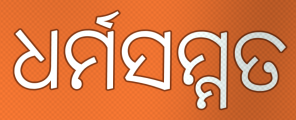
ଧର୍ମସମ୍ମତ